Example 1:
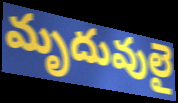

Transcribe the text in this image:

మృదువులై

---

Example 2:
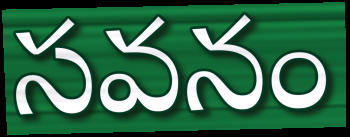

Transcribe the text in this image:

సవనం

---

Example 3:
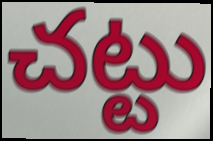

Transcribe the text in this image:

చట్టు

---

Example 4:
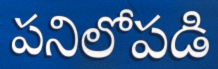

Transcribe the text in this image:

పనిలోపడి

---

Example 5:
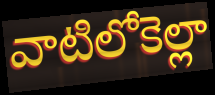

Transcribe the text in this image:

వాటిలోకెల్లా